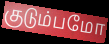
குடும்பமோ